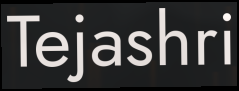
Tejashri